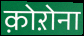
क़ोऱोना